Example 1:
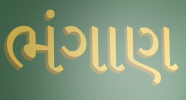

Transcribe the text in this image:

ભંગાણ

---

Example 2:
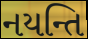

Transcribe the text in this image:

નયન્તિ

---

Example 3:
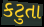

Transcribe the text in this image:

કટુતા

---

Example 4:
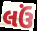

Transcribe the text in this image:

લઉં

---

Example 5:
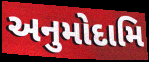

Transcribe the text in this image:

અનુમોદામિ